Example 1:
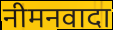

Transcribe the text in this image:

नीमनवादा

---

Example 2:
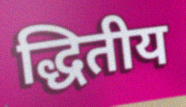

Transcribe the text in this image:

द्धितीय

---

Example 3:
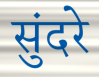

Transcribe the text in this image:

सुंदरे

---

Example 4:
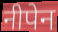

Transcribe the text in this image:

नीपेन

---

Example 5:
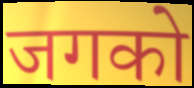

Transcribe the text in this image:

जगको